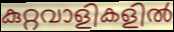
കുറ്റവാളികളിൽ